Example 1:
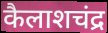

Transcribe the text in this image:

कैलाशचंद्र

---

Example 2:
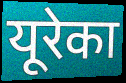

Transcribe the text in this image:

यूरेका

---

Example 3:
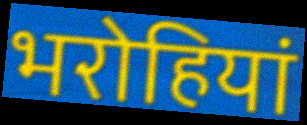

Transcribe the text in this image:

भरोहियां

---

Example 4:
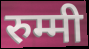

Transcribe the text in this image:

रुम्मी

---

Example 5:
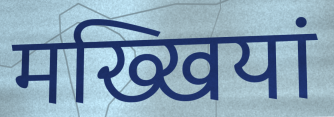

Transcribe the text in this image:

मख्खियां